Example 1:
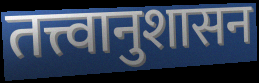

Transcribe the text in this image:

तत्त्वानुशासन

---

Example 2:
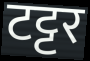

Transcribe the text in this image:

टट्टर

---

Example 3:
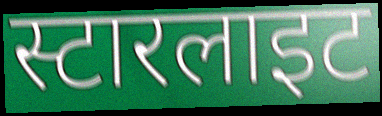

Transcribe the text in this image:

स्टारलाइट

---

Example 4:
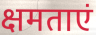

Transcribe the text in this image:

क्षमताएं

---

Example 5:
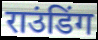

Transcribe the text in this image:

राउंडिंग